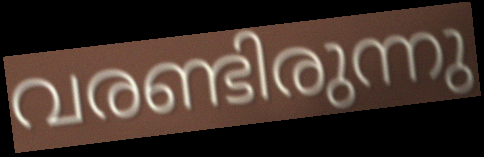
വരണ്ടിരുന്നു